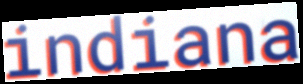
indiana